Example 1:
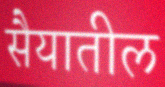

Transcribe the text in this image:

सैयातील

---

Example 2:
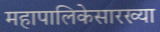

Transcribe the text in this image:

महापालिकेसारख्या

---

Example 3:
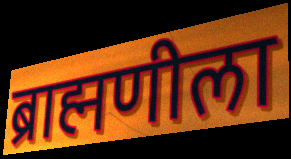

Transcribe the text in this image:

ब्राह्मणीला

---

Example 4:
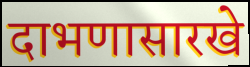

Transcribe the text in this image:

दाभणासारखे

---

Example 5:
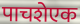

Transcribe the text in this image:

पाचशेएक